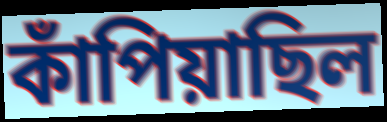
কাঁপিয়াছিল